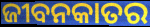
ଜୀବନକାତର